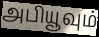
அபியூவும்